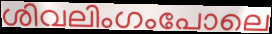
ശിവലിംഗംപോലെ